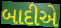
બાદીએ